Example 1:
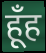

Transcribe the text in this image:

हूँह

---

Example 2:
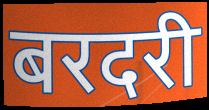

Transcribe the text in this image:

बरदरी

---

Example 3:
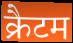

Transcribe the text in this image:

क्रैटम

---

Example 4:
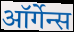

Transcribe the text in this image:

ऑर्गेन्स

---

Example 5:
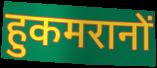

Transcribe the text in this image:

हुकमरानों